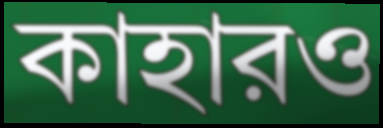
কাহারও